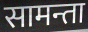
सामन्ता